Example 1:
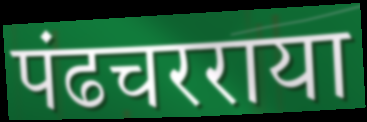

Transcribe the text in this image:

पंढचरराया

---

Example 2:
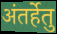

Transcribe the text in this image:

अंतर्हेतु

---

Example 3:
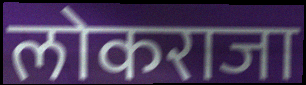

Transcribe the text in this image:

लोकराजा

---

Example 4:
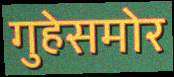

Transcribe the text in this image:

गुहेसमोर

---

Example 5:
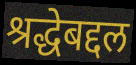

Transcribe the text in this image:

श्रद्धेबद्दल